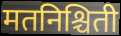
मतनिश्चिती